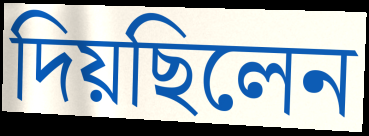
দিয়ছিলেন